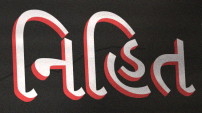
નિહિત